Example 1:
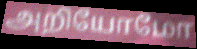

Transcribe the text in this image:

அறியோமோ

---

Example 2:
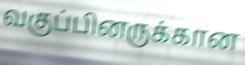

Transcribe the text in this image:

வகுப்பினருக்கான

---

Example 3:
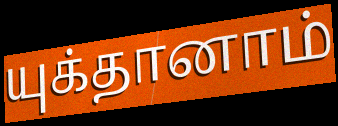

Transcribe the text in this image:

யுக்தானாம்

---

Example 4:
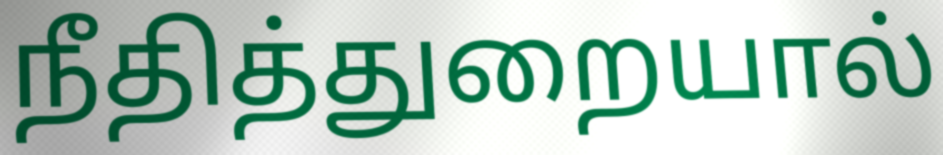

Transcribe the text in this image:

நீதித்துறையால்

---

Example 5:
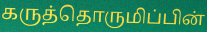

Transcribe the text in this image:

கருத்தொருமிப்பின்